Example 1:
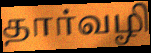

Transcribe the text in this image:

தார்வழி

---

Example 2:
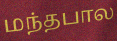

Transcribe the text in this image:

மந்தபால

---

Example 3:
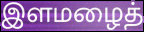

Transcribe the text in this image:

இளமழைத்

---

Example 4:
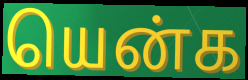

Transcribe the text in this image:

யென்க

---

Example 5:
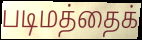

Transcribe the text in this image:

படிமத்தைக்